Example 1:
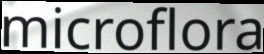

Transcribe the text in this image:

microflora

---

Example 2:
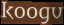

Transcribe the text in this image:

koogu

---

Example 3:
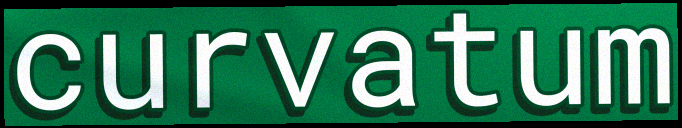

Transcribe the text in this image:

curvatum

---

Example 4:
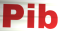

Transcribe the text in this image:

Pib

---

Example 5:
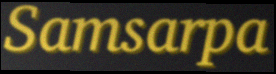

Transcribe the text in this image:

Samsarpa